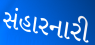
સંહારનારી